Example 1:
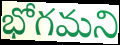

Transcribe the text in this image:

భోగమని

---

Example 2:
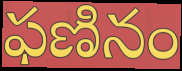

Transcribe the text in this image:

ఫణినం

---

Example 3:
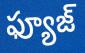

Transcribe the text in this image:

ఫ్యూజ్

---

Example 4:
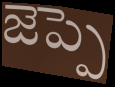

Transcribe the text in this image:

జెప్పె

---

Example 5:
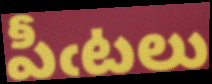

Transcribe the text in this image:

పీఁటలు